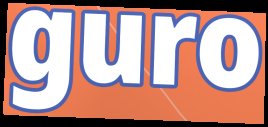
guro